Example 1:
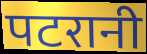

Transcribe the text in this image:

पटरानी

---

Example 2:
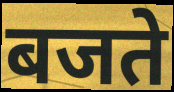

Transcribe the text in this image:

बजते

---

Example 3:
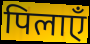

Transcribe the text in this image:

पिलाएँ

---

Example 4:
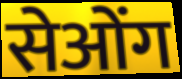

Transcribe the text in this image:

सेओंग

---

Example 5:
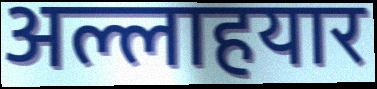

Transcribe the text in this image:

अल्लाहयार